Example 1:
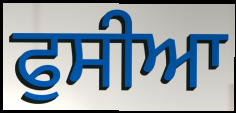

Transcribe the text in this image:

ਫੁਸੀਆ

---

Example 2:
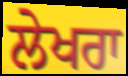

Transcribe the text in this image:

ਲੇਖਰਾ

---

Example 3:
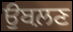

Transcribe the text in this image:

ਉਬਲ਼ਣ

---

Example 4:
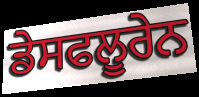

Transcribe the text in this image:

ਡੇਸਫਲੂਰੇਨ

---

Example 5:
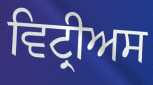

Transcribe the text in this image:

ਵਿਟ੍ਰੀਅਸ